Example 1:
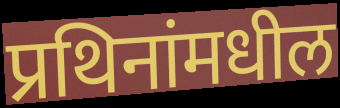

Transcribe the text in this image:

प्रथिनांमधील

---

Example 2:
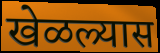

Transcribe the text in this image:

खेळल्यास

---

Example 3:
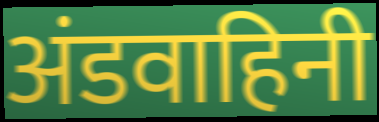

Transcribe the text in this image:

अंडवाहिनी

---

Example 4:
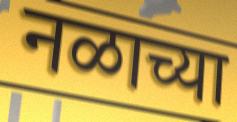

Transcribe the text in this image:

नळाच्या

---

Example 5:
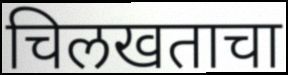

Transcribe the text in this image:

चिलखताचा